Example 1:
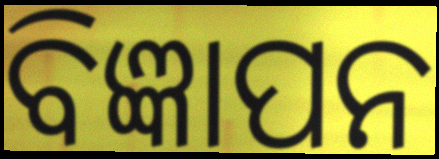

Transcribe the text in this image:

ବିଜ୍ଞାପନ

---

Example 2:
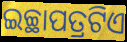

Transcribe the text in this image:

ଇଚ୍ଛାପତ୍ରଟିଏ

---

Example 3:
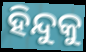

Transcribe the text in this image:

ହିନ୍ଦୁକୁ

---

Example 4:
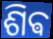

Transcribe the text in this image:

ଶିଵ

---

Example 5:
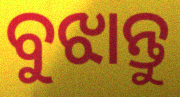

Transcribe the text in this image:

ବୁଝାନ୍ତୁ